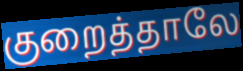
குறைத்தாலே